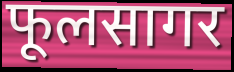
फूलसागर